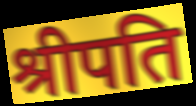
श्रीपति